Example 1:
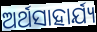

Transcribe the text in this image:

ଅର୍ଥସାହାର୍ଯ୍ୟ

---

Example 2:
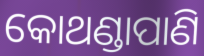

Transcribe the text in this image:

କୋଥଣ୍ଡାପାଣି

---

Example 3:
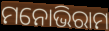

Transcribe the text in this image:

ମନୋଭିରାମ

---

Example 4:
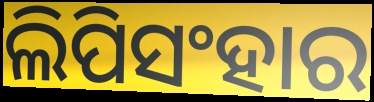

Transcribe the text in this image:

ଲିପିସଂହାର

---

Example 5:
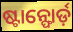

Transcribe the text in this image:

ଷ୍ଟାନ୍ଫୋର୍ଡ଼